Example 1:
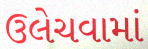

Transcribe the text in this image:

ઉલેચવામાં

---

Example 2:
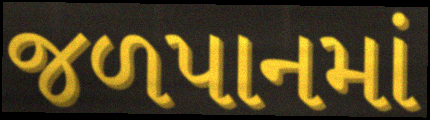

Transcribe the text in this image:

જળપાનમાં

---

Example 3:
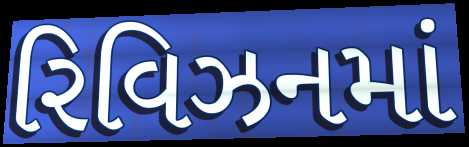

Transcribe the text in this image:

રિવિઝનમાં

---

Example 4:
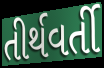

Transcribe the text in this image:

તીર્થવર્તી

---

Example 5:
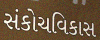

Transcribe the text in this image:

સંકોચવિકાસ